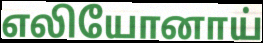
எலியோனாய்